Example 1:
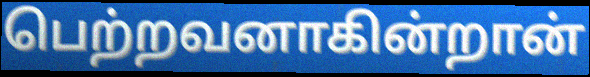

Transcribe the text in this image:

பெற்றவனாகின்றான்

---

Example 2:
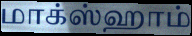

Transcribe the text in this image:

மாக்ஸ்ஹாம்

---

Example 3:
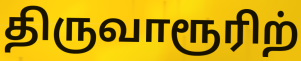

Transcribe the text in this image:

திருவாரூரிற்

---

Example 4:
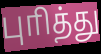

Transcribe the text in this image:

புரித்து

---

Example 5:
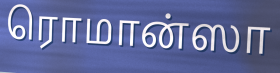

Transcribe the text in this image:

ரொமான்ஸா